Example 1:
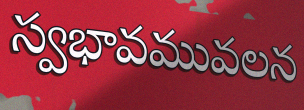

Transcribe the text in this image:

స్వభావమువలన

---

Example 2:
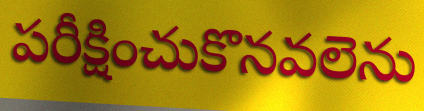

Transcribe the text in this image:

పరీక్షించుకొనవలెను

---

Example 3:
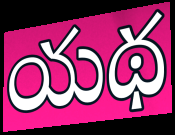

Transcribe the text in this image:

యథ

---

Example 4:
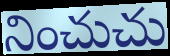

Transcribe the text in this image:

నించుచు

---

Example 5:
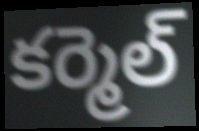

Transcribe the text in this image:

కర్మెల్